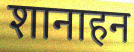
शानाहन